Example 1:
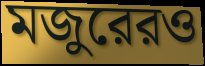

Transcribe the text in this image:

মজুরেরও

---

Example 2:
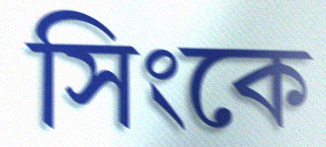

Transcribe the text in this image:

সিংকে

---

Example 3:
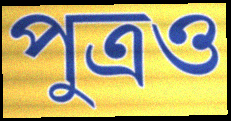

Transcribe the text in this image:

পুত্রও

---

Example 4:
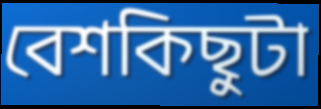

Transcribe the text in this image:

বেশকিছুটা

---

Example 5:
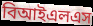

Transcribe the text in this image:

বিআইএলএস